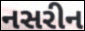
નસરીન